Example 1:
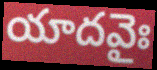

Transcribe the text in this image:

యాదవైః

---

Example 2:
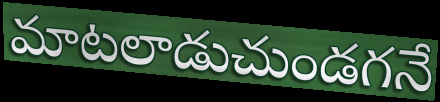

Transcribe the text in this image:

మాటలాడుచుండగనే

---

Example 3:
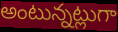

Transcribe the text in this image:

అంటున్నట్లుగా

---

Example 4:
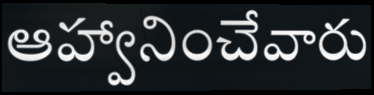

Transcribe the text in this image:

ఆహ్వానించేవారు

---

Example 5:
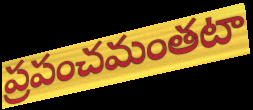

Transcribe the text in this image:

ప్రపంచమంతటా